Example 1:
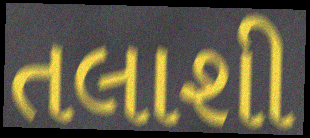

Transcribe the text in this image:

તલાશી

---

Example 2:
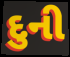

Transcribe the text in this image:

દુની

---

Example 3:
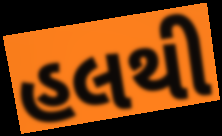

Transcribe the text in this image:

હલથી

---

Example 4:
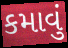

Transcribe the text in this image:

કમાવું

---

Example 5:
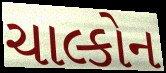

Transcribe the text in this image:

ચાલ્કોન